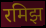
रमिझ